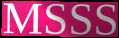
MSSS